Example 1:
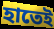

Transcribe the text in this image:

হাতেই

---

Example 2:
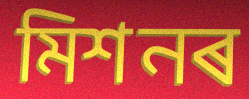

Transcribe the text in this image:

মিশনৰ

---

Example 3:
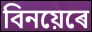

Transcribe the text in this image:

বিনয়েৰে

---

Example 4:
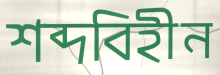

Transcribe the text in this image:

শব্দবিহীন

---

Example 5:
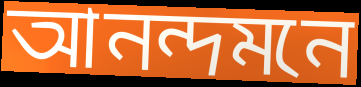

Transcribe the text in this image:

আনন্দমনে